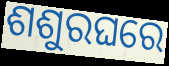
ଶଶୁରଘରେ